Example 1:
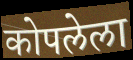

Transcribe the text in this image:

कोपलेला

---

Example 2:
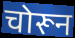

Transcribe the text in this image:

चोरून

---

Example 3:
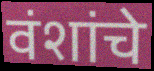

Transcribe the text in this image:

वंशांचे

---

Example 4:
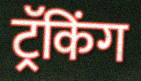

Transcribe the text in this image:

ट्रॅकिंग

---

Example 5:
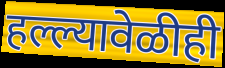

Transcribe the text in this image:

हल्ल्यावेळीही